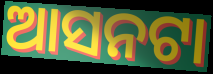
ଆସନଟା